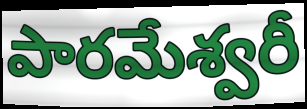
పారమేశ్వరీ